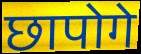
छापोगे